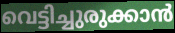
വെട്ടിച്ചുരുക്കാൻ